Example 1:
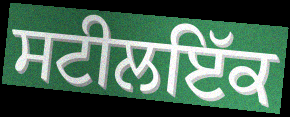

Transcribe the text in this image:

ਸਟੀਲਇੱਕ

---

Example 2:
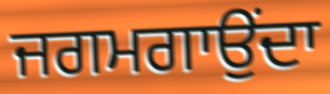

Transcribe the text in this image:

ਜਗਮਗਾਉਂਦਾ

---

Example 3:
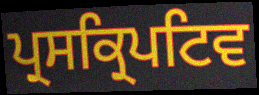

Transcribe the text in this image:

ਪ੍ਰਸਕ੍ਰਿਪਟਿਵ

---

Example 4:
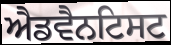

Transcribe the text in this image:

ਐਡਵੈਨਟਿਸਟ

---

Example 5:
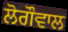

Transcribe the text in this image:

ਲੋਗੌਵਾਲ